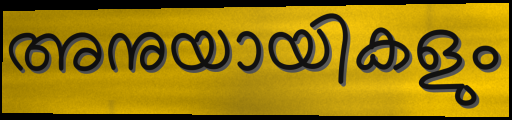
അനുയായികളും